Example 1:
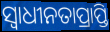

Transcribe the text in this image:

ସ୍ଵାଧୀନତାପ୍ରାପ୍ତି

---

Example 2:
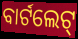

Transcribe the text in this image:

ବାର୍ଟଲେଟ୍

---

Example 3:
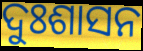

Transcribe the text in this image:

ଦୁଃଶାସନ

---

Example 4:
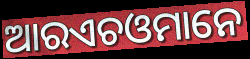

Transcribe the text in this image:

ଆରଏଚଓମାନେ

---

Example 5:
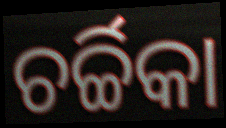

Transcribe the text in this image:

ଚର୍ଚ୍ଚିକା